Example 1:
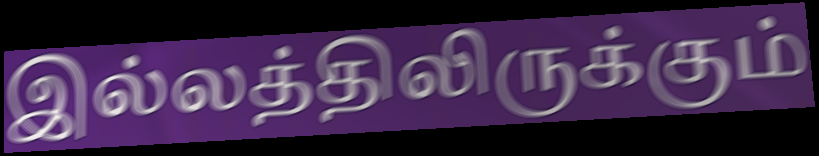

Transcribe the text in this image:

இல்லத்திலிருக்கும்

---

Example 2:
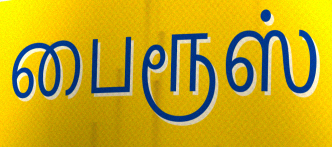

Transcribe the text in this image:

பைரூஸ்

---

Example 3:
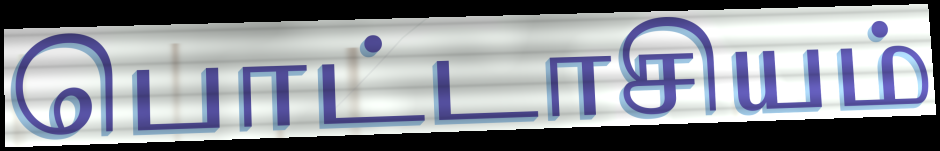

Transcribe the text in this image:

பொட்டாசியம்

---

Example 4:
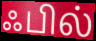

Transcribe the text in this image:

ஃபில்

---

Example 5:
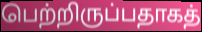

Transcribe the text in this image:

பெற்றிருப்பதாகத்